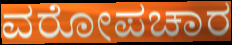
ವರೋಪಚಾರ